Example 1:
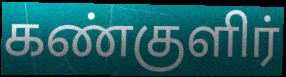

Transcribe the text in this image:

கண்குளிர்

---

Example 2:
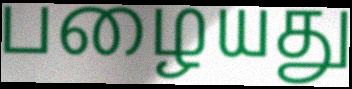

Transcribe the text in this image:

பழையது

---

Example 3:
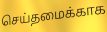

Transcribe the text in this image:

செய்தமைக்காக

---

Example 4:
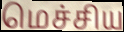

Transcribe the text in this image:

மெச்சிய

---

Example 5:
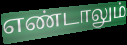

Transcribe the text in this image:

எண்டாலும்